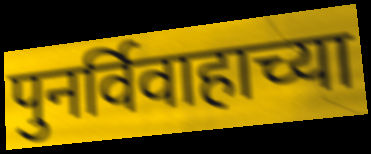
पुनर्विवाहाच्या